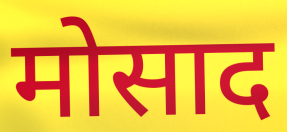
मोसाद